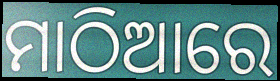
ମାଠିଆରେ